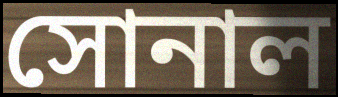
সোনাল